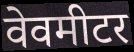
वेवमीटर